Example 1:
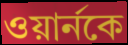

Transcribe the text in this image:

ওয়ার্নকে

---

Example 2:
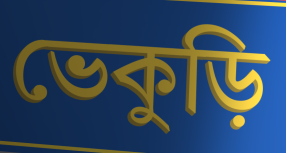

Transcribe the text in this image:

ভেকুড়ি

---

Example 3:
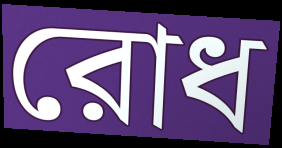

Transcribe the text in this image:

রোধ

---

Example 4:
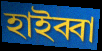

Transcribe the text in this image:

হাইব্বা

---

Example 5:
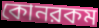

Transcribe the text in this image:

কোনরকম